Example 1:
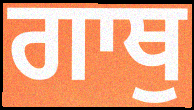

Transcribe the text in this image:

ਗਾਥੁ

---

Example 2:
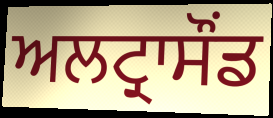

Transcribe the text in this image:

ਅਲਟ੍ਰਾਸੌਂਡ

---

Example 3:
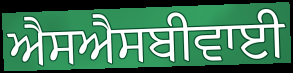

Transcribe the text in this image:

ਐਸਐਸਬੀਵਾਈ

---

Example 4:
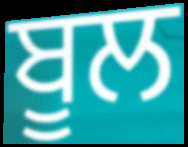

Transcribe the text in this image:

ਬੂਲ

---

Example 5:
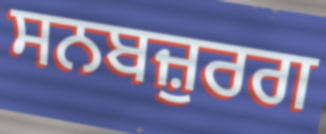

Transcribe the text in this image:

ਸਨਬਜ਼ੁਰਗ